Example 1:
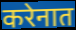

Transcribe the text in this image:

करेनात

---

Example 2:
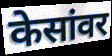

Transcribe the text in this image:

केसांवर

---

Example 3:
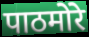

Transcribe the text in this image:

पाठमोरे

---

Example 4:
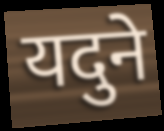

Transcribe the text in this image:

यदुने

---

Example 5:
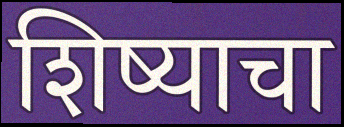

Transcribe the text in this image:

शिष्याचा